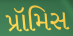
પ્રૉમિસ